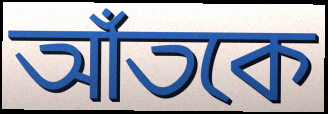
আঁতকে